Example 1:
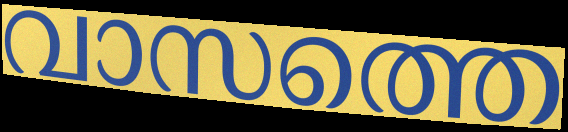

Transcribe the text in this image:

വാസത്തെ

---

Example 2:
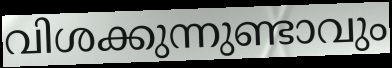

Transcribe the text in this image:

വിശക്കുന്നുണ്ടാവും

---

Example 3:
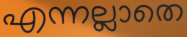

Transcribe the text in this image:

എന്നല്ലാതെ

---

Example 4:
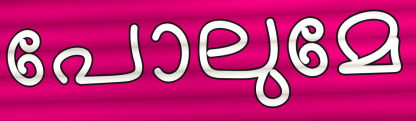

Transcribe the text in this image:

പോലുമേ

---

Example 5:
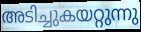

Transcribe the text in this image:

അടിച്ചുകയറ്റുന്നു